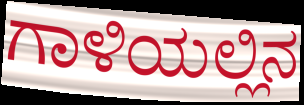
ಗಾಳಿಯಲ್ಲಿನ